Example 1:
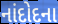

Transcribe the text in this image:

નાંદોદના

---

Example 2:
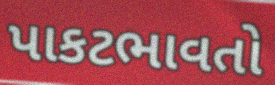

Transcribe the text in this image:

પાકટભાવતો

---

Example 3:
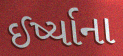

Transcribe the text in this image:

ઈર્ષ્યાના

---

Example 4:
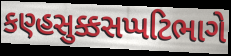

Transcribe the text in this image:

કણ્હસુક્કસપ્પટિભાગે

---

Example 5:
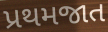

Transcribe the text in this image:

પ્રથમજાત